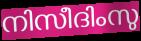
നിസീദിംസു